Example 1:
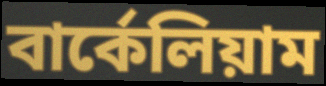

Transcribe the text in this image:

বার্কেলিয়াম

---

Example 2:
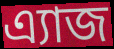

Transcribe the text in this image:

এ্যাজ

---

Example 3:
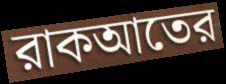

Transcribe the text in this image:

রাকআতের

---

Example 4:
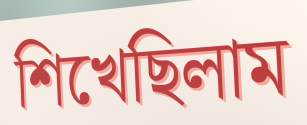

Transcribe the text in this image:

শিখেছিলাম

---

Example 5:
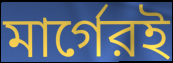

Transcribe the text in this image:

মার্গেরই